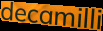
decamilli